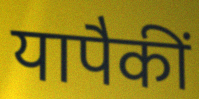
यापैकीं